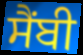
ਸੈਂਬੀ